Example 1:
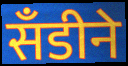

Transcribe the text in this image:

सॅंडीने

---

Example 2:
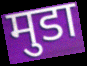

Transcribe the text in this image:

मुडा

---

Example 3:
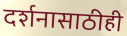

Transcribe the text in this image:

दर्शनासाठीही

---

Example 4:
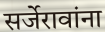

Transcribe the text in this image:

सर्जेरावांना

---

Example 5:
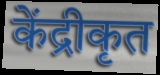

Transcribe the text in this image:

केंद्रीकृत